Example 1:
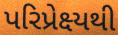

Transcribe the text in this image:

પરિપ્રેક્ષ્યથી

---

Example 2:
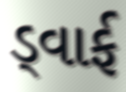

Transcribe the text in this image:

ડ્વાર્ફ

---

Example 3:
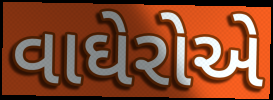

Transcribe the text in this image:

વાઘેરોએ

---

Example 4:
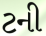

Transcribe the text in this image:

ટની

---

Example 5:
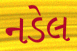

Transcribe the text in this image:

નડેલ